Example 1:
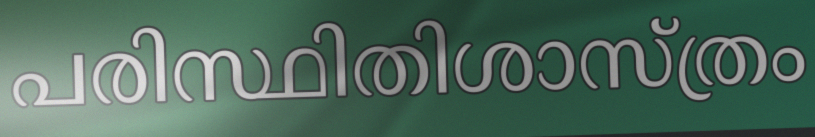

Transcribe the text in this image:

പരിസ്ഥിതിശാസ്ത്രം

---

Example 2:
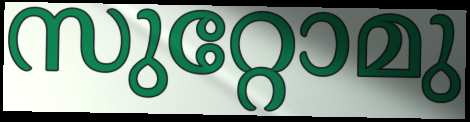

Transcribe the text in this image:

സുറ്റോമു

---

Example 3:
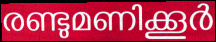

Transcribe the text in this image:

രണ്ടുമണിക്കൂർ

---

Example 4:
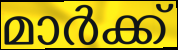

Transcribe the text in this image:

മാർക്ക്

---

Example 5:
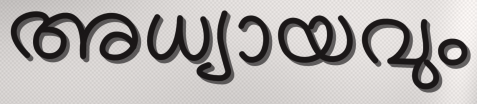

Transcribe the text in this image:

അധ്യായവും